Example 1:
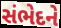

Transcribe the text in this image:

સંભેદને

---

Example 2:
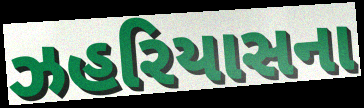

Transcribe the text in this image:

ઝહરિયાસના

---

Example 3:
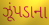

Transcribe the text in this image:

ઝૂંપડાના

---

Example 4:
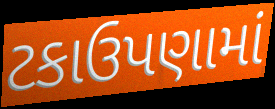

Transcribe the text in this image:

ટકાઉપણામાં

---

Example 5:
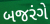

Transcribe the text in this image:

બજરંગે